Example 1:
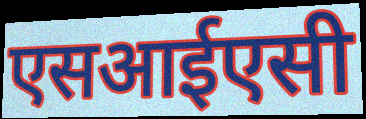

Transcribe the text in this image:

एसआईएसी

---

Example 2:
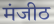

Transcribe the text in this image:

मंजीठ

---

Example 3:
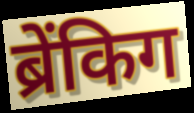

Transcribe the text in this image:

ब्रेंकिग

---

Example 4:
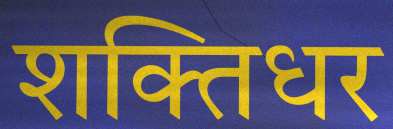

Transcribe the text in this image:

शक्तिधर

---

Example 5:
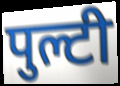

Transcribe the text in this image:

पुल्टी